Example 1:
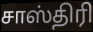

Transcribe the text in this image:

சாஸ்திரி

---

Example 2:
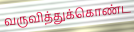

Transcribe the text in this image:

வருவித்துக்கொண்ட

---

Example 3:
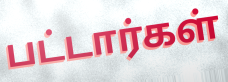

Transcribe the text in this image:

பட்டார்கள்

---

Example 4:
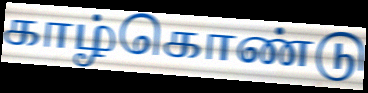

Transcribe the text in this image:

காழ்கொண்டு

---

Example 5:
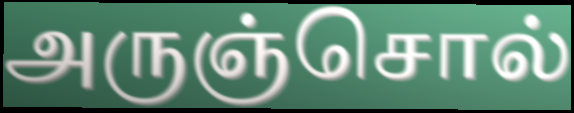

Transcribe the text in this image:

அருஞ்சொல்